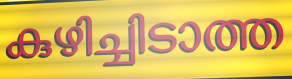
കുഴിച്ചിടാത്ത